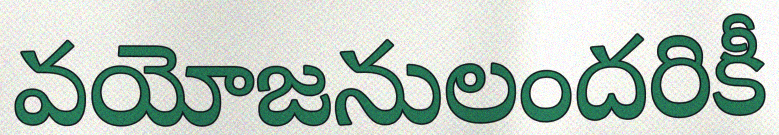
వయోజనులందరికీ